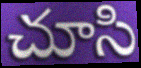
చూసి